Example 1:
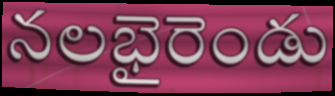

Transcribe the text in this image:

నలభైరెండు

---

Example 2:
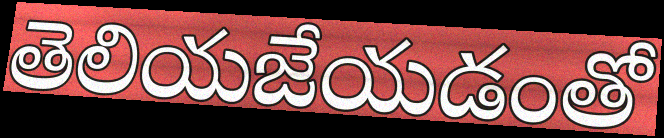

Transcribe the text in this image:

తెలియజేయడంతో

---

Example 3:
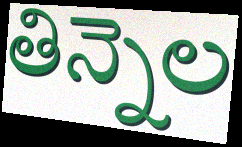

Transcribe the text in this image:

తిన్నెల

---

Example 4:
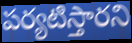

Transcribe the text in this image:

పర్యటిస్తారని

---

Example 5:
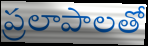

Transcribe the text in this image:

ప్రలాపాలతో